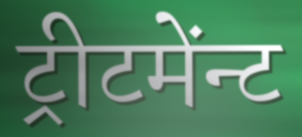
ट्रीटमेंन्ट